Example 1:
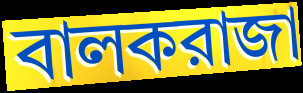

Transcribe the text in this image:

বালকরাজা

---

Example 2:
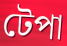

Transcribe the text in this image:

টেপা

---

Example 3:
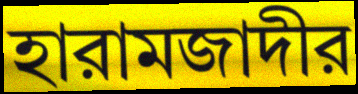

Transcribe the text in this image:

হারামজাদীর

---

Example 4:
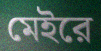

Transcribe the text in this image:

মেইরে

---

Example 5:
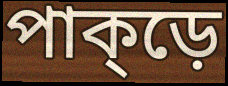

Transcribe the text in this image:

পাক্ড়ে